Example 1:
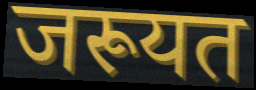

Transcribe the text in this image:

जरूयत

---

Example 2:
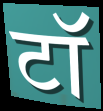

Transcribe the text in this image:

टॉ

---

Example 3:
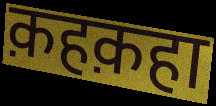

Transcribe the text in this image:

क़हक़हा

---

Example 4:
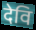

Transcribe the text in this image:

देवि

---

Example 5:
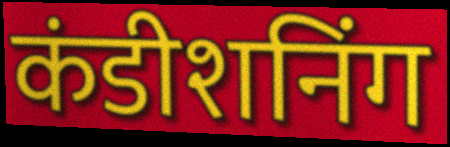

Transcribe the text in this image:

कंडीशनिंग